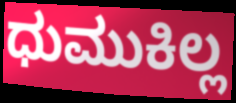
ಧುಮುಕಿಲ್ಲ